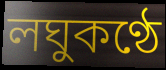
লঘুকণ্ঠে